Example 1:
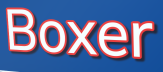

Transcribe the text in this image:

Boxer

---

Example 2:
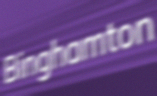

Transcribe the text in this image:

Binghamton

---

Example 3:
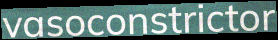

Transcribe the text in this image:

vasoconstrictor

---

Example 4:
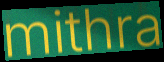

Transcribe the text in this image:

mithra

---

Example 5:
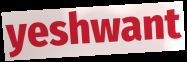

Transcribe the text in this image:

yeshwant